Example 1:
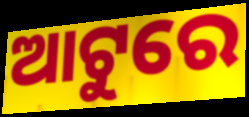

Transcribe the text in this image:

ଆଟୁରେ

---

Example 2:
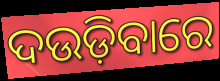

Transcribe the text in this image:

ଦଉଡ଼ିବାରେ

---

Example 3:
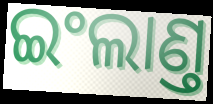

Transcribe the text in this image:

ଇଂଲାଣ୍ତ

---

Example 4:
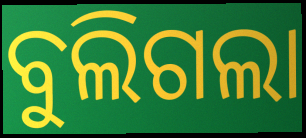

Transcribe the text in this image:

ବୁଲିଗଲା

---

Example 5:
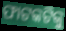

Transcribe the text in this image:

ଫାଟକଟିକୁ